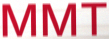
MMT